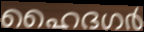
ഹൈദഗർ